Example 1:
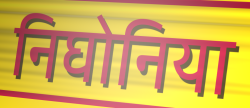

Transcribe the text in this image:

निघोनिया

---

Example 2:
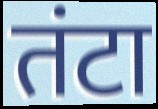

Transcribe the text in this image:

तंटा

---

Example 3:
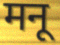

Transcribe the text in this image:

मनू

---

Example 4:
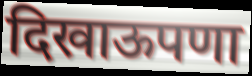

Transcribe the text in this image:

दिखाऊपणा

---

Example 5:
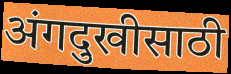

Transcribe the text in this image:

अंगदुखीसाठी